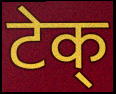
टेक्